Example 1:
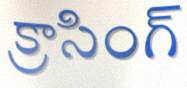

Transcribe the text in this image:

క్రాసింగ్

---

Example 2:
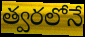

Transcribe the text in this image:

త్వరలోనే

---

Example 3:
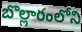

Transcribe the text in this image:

బొల్లారంలోని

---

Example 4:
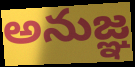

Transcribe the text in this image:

అనుజ్ఞ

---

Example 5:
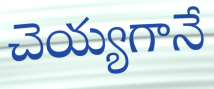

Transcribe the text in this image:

చెయ్యగానే